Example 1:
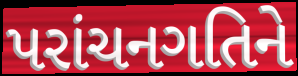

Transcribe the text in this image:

પરાંચનગતિને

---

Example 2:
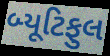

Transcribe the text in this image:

બ્યૂટિફુલ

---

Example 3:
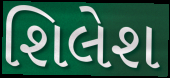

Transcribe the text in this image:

શિલેશ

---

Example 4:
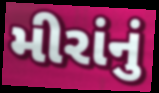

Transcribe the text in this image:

મીરાંનું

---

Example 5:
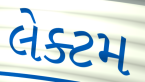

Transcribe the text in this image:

લેક્ટમ